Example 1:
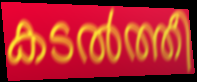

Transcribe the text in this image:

കടൽത്തീ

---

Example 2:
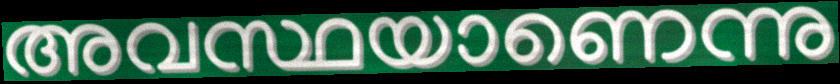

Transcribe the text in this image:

അവസ്ഥയാണെന്നു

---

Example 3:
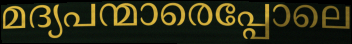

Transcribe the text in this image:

മദ്യപന്മാരെപ്പോലെ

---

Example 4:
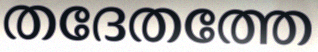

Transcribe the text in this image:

തദേതത്തേ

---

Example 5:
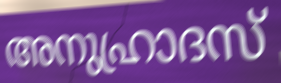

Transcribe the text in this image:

അനുഹ്രാദസ്